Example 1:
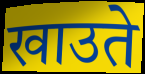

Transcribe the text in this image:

खाउते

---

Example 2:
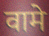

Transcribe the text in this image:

वामे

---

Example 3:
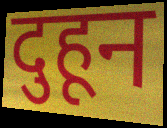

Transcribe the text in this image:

दुहून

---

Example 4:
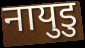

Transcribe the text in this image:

नायुडु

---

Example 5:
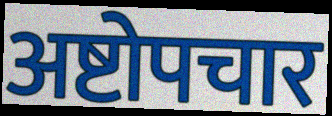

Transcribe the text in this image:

अष्टोपचार